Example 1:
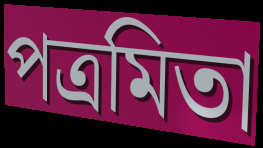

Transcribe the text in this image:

পত্রমিতা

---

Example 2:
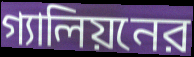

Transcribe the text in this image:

গ্যালিয়নের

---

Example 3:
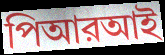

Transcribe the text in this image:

পিআরআই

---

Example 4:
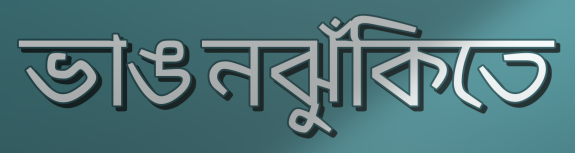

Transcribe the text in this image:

ভাঙনঝুঁকিতে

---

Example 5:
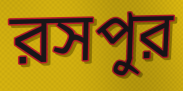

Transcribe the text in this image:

রসপুর